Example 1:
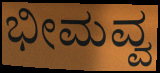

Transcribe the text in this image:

ಭೀಮವ್ವ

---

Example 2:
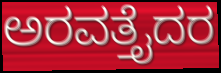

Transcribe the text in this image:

ಅರವತ್ತೈದರ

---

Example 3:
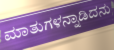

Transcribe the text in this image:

ಮಾತುಗಳನ್ನಾಡಿದನು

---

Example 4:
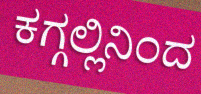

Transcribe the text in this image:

ಕಗ್ಗಲ್ಲಿನಿಂದ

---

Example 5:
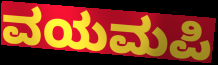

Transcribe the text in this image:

ವಯಮಪಿ